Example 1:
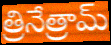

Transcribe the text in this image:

త్రినేత్రామ్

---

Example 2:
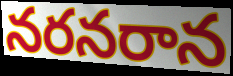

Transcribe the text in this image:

నరనరాన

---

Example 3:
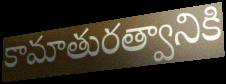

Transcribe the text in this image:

కామాతురత్వానికి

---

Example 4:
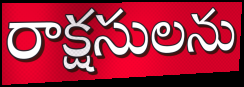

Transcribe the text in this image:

రాక్షసులను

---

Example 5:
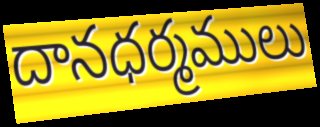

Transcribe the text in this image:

దానధర్మములు